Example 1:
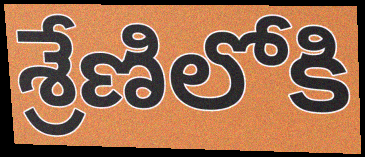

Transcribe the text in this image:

శ్రేణిలోకి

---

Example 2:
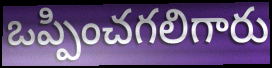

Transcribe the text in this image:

ఒప్పించగలిగారు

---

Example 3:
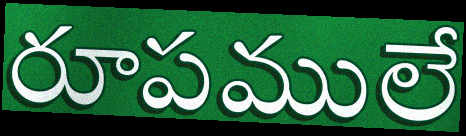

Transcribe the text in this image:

రూపములే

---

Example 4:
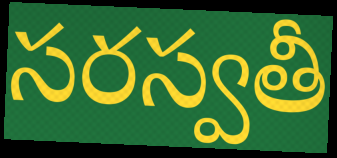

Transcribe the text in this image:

సరస్వతీ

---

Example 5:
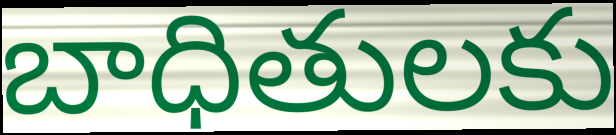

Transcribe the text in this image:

బాధితులకు